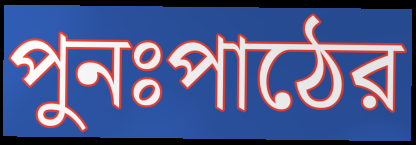
পুনঃপাঠের